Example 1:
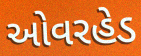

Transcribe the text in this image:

ઓવરહેડ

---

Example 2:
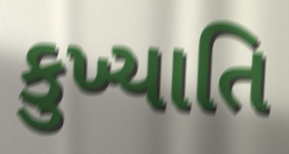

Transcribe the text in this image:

કુખ્યાતિ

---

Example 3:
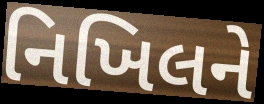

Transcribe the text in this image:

નિખિલને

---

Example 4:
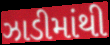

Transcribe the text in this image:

ઝાડીમાંથી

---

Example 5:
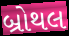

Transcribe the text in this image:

બ્રોથલ